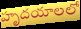
హృదయాలలో